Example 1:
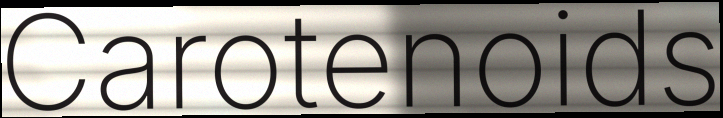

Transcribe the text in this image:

Carotenoids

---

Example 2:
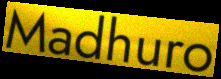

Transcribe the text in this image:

Madhuro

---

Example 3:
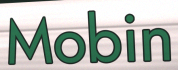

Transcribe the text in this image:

Mobin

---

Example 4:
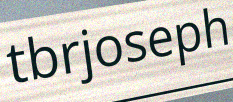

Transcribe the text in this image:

tbrjoseph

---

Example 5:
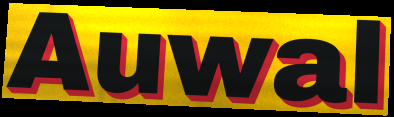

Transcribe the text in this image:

Auwal